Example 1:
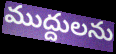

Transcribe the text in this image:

ముద్దులను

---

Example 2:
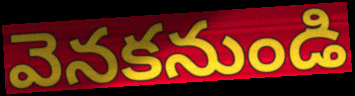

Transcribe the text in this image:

వెనకనుండి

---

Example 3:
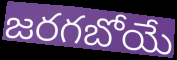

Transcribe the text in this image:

జరగబోయే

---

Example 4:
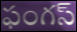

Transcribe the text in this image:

ఫంగస్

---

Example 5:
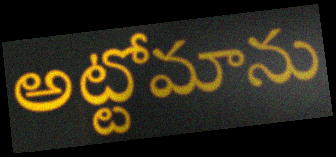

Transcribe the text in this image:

అట్టోమాను